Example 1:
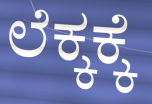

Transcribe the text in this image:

ಲೆಕ್ಕಕ್ಕೆ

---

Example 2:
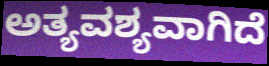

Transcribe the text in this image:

ಅತ್ಯವಶ್ಯವಾಗಿದೆ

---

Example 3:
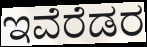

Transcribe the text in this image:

ಇವೆರೆಡರ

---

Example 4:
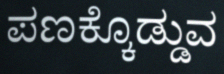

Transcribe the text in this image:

ಪಣಕ್ಕೊಡ್ಡುವ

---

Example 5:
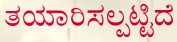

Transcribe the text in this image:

ತಯಾರಿಸಲ್ಪಟ್ಟಿದೆ